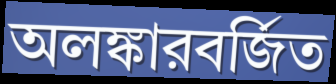
অলঙ্কারবর্জিত